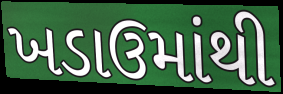
ખડાઉમાંથી